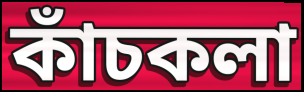
কাঁচকলা